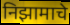
निझामाचे